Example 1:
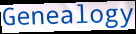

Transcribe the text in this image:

Genealogy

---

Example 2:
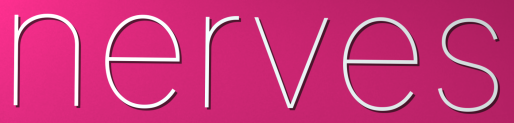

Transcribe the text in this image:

nerves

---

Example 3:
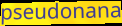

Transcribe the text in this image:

pseudonana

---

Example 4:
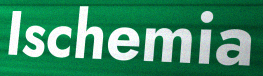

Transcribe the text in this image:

Ischemia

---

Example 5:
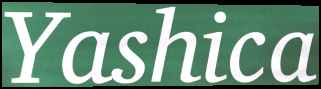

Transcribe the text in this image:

Yashica